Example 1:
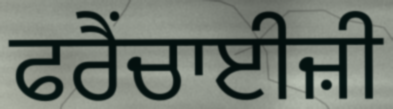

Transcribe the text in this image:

ਫਰੈਂਚਾਈਜ਼ੀ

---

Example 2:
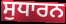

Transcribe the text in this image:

ਸੁਧਾਰਨ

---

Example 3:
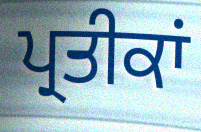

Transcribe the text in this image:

ਪ੍ਰਤੀਕਾਂ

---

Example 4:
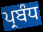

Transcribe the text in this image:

ਪ੍ਰਬੰਧ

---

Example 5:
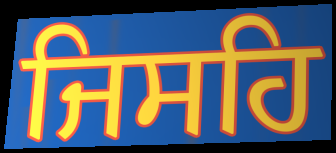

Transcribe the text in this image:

ਜਿਸਹਿ